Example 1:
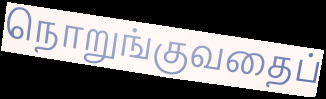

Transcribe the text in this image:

நொறுங்குவதைப்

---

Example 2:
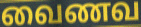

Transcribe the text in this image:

வைணவ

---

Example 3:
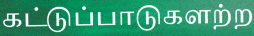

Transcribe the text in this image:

கட்டுப்பாடுகளற்ற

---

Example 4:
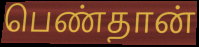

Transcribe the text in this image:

பெண்தான்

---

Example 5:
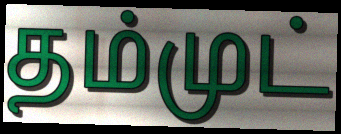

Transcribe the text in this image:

தம்முட்